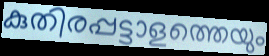
കുതിരപ്പട്ടാളത്തെയും